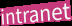
intranet